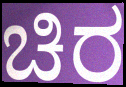
ಚಿರ